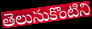
తెలుసుకొంటిని